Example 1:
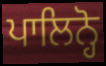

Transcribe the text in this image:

ਪਾਲਿਨ੍ਹੋ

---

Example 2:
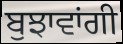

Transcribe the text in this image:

ਬੁਝਾਵਾਂਗੀ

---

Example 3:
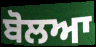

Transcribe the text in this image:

ਬੋਲਆ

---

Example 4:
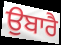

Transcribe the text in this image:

ਉਬਾਰੈ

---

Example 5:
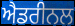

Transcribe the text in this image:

ਐਡਰੀਨਲ